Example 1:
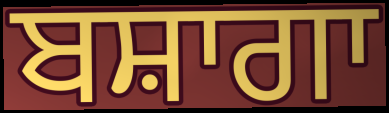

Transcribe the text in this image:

ਬਸ਼ਾਗਾ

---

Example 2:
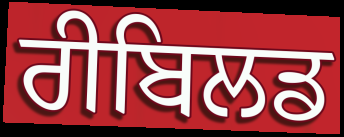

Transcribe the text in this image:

ਰੀਬਿਲਡ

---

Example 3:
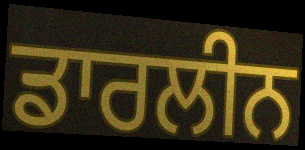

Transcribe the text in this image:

ਡਾਰਲੀਨ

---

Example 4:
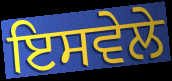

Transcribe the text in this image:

ਇਸਵੇਲੇ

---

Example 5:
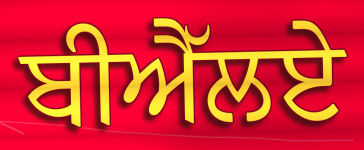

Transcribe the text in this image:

ਬੀਐੱਲਏ